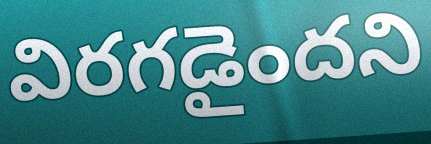
విరగడైందని